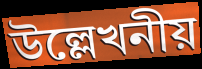
উল্লেখনীয়